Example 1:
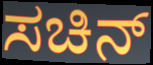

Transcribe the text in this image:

ಸಚಿನ್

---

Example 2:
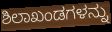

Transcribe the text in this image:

ಶಿಲಾಖಂಡಗಳನ್ನು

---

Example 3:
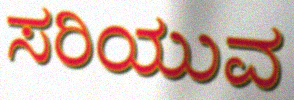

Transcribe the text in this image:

ಸರಿಯುವ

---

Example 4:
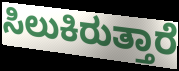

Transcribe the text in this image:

ಸಿಲುಕಿರುತ್ತಾರೆ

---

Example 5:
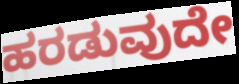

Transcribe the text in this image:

ಹರಡುವುದೇ